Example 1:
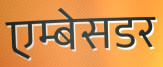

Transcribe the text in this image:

एम्‍बेसडर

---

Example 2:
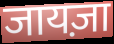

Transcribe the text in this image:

जायज़ा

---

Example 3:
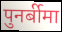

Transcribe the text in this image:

पुनर्बीमा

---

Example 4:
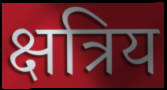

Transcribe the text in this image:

क्षत्रिय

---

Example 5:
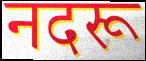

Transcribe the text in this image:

नदरू